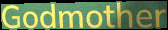
Godmother